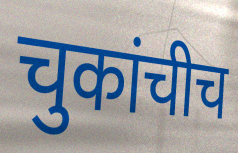
चुकांचीच